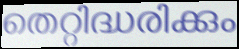
തെറ്റിദ്ധരിക്കും